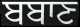
ਬਬਾਣ